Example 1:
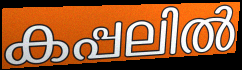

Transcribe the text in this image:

കപ്പലിൽ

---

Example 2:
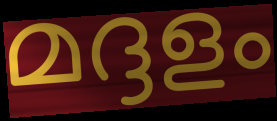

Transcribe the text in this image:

മദ്ദളം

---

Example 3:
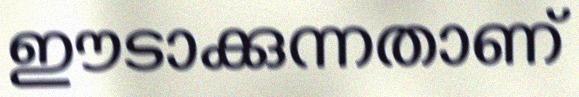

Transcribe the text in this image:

ഈടാക്കുന്നതാണ്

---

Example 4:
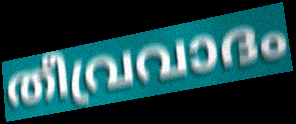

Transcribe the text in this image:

തീവ്രവാദം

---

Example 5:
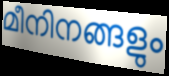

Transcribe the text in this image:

മീനിനങ്ങളും